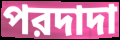
পরদাদা